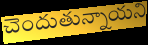
చెందుతున్నాయని